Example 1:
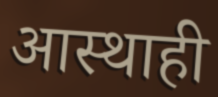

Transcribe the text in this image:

आस्थाही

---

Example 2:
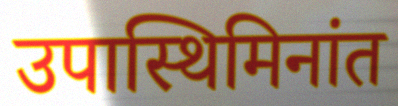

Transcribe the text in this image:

उपास्थिमिनांत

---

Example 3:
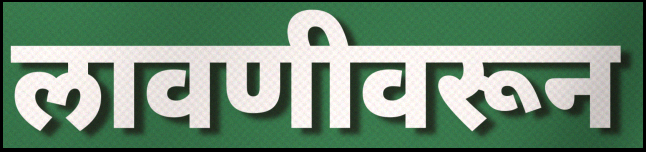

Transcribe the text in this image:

लावणीवरून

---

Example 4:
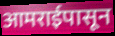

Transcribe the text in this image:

आमराईपासून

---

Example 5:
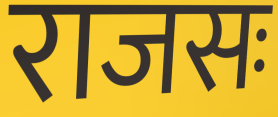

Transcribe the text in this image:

राजसः